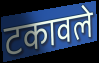
टकावले